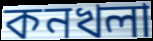
কনখলা